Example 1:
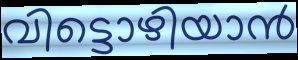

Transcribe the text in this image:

വിട്ടൊഴിയാൻ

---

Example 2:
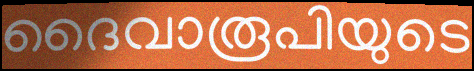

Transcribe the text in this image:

ദൈവാരൂപിയുടെ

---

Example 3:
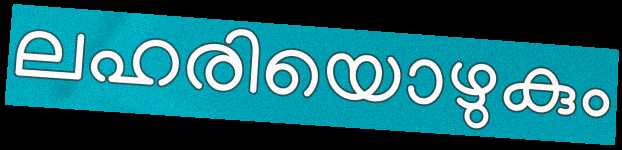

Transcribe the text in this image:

ലഹരിയൊഴുകും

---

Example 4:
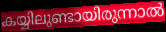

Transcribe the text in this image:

കയ്യിലുണ്ടായിരുന്നാൽ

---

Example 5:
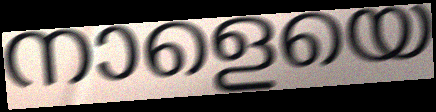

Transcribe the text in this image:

നാളെയെ